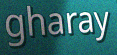
gharay